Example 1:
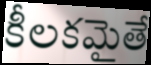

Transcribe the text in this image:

కీలకమైతే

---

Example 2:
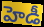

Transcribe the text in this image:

హెడీ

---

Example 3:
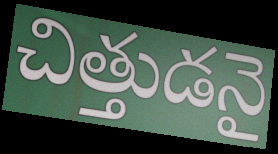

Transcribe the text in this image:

చిత్తుడనై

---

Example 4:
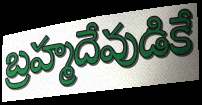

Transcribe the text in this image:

బ్రహ్మదేవుడికే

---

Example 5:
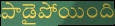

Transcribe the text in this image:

పాడైపోయింది